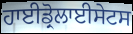
ਹਾਈਡ੍ਰੋਲਾਈਸੇਟਸ